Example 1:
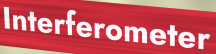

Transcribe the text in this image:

Interferometer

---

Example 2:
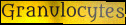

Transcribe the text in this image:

Granulocytes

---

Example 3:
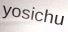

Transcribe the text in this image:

yosichu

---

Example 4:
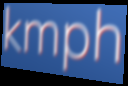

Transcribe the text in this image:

kmph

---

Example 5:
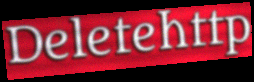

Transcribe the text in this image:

Deletehttp